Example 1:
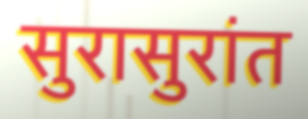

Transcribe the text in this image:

सुरासुरांत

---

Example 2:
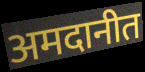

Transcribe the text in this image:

अमदानीत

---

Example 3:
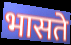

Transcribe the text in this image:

भासते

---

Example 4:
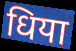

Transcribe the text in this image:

धिया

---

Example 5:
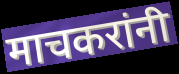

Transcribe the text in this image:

माचकरांनी